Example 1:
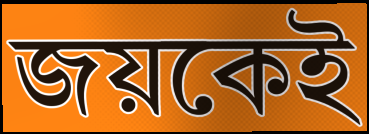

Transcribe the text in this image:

জয়কেই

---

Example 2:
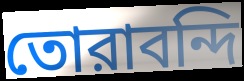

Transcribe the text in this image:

তোরাবন্দি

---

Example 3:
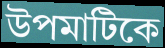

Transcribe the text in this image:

উপমাটিকে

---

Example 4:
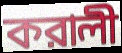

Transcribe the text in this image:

করালী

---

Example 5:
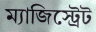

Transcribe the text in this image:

ম্যাজিস্ট্রেট